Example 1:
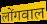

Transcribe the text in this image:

लोंगवाल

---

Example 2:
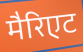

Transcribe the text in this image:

मैरिएट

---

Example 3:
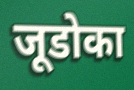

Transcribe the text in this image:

जूडोका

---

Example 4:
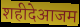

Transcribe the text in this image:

शहीदेआजम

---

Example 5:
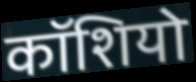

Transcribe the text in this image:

कॉशियो